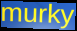
murky